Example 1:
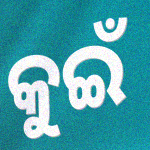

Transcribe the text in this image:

କୁଇଁ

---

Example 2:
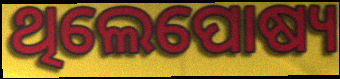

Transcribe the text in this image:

ଥିଲେପୋଷ୍ୟ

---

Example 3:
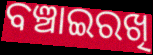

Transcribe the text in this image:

ବଞ୍ଚାଇରଖି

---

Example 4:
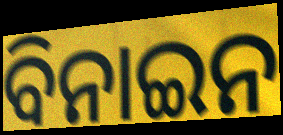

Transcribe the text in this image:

ବିନାଇନ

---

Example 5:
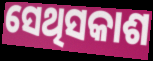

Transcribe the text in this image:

ସେଥିସକାଶ